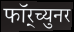
फॉर्च्युनर